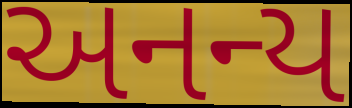
અનન્ય